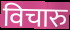
विचारु